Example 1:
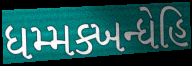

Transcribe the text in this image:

ધમ્મક્ખન્ધેહિ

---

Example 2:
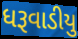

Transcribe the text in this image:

ધરૂવાડીયુ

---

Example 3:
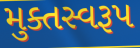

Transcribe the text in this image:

મુક્તસ્વરૂપ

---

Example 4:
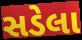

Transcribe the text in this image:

સડેલા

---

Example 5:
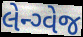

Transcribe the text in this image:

લેન્ગ્વેજ